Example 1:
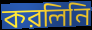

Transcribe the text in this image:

করলিনি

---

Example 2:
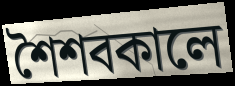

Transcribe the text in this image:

শৈশবকালে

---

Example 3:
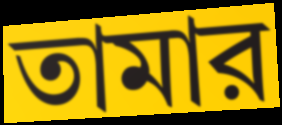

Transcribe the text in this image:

তামার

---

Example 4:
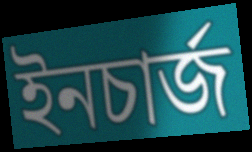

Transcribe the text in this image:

ইনচার্জ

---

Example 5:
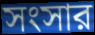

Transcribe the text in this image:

সংসার